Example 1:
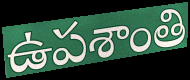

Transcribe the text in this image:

ఉపశాంతి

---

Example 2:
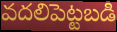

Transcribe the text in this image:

వదలిపెట్టబడి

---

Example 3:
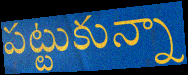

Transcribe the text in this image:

పట్టుకున్నా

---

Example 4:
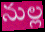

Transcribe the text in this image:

నుల్ల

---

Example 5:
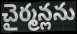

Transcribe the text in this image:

చైర్మన్లను